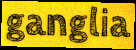
ganglia